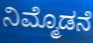
ನಿಮ್ಮೊಡನೆ